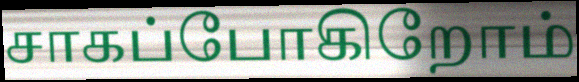
சாகப்போகிறோம்